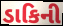
ડાકિની